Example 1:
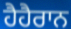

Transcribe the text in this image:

ਹੈਹੈਰਾਨ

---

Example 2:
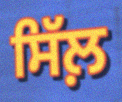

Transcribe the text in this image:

ਸਿੱਲ਼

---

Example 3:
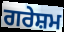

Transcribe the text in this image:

ਗਰੇਸ਼ਮ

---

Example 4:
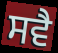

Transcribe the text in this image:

ਸਵੈ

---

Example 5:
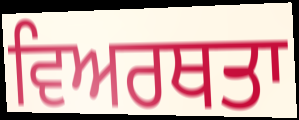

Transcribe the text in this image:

ਵਿਅਰਥਤਾ